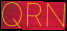
QRN